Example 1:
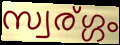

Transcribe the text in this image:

സ്വര്ഗ്ഗം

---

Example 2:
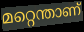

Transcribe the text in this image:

മറ്റെന്താണ്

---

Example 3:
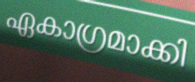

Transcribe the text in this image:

ഏകാഗ്രമാക്കി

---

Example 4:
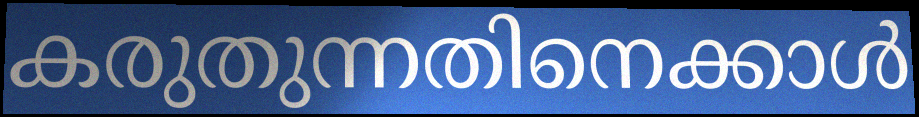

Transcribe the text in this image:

കരുതുന്നതിനെക്കാൾ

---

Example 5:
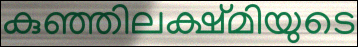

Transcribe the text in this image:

കുഞ്ഞിലക്ഷ്മിയുടെ